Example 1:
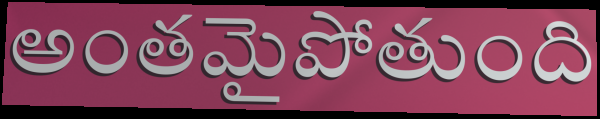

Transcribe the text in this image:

అంతమైపోతుంది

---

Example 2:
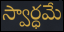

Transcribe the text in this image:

స్వార్ధమే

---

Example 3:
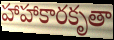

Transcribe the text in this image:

హాహాకారకృతా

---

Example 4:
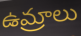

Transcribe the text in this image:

ఉమ్రాలు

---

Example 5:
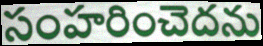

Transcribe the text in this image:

సంహరించెదను